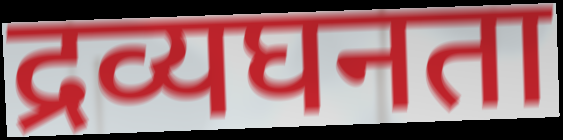
द्रव्यघनता